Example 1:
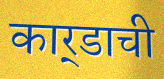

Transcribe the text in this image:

कार्डाची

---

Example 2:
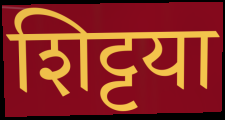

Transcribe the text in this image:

शिट्टया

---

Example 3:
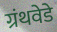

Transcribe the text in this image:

ग्रंथवेडे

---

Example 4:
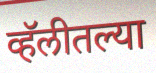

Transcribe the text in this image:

व्हॅलीतल्या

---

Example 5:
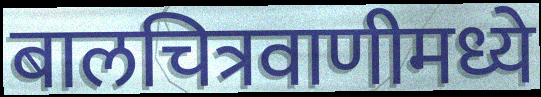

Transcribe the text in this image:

बालचित्रवाणीमध्ये